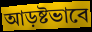
আড়ষ্টভাবে